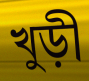
খুড়ী